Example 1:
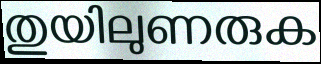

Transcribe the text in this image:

തുയിലുണരുക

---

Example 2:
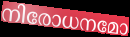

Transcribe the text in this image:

നിരോധനമോ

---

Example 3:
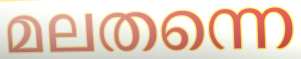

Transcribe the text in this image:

മലതന്നെ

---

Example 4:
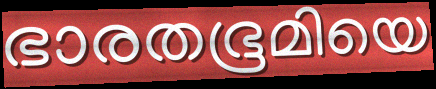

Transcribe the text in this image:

ഭാരതഭൂമിയെ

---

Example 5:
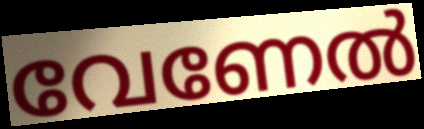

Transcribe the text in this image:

വേണേൽ